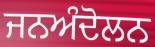
ਜਨਅੰਦੋਲਨ